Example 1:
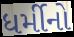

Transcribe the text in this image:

ધર્મીનો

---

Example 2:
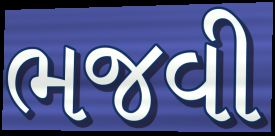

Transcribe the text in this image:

ભજવી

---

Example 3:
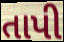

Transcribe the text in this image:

તાપી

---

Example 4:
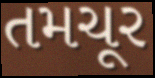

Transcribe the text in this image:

તમચૂર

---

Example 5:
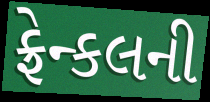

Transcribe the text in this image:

ફ્રેન્કલની